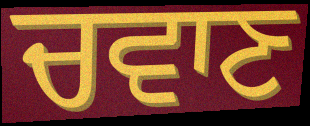
ਚਵਾਣ